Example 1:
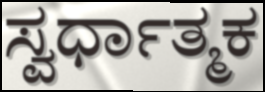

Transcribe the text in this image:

ಸ್ವರ್ಧಾತ್ಮಕ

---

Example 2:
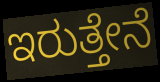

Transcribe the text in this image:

ಇರುತ್ತೇನೆ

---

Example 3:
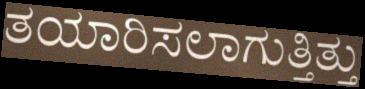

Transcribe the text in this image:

ತಯಾರಿಸಲಾಗುತ್ತಿತ್ತು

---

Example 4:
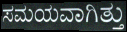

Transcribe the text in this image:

ಸಮಯವಾಗಿತ್ತು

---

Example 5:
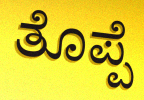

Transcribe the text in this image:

ತೊಪ್ಪೆ